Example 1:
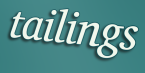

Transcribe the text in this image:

tailings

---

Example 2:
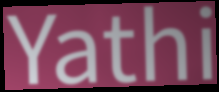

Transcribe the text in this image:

Yathi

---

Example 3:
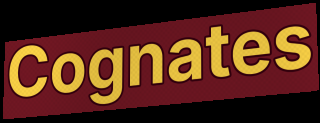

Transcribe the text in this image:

Cognates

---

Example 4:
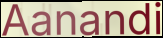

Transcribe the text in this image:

Aanandi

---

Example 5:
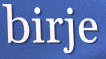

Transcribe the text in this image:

birje